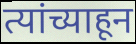
त्यांच्याहून